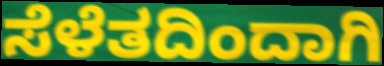
ಸೆಳೆತದಿಂದಾಗಿ